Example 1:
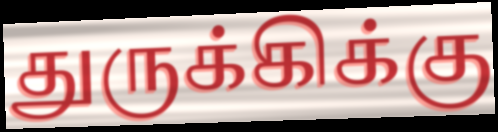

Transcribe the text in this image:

துருக்கிக்கு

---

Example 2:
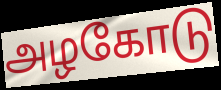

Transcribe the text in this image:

அழகோடு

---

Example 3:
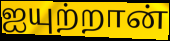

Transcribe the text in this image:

ஐயுற்றான்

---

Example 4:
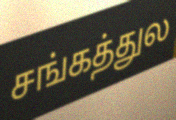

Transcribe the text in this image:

சங்கத்துல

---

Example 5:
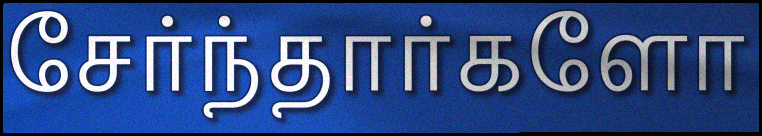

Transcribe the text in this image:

சேர்ந்தார்களோ